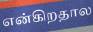
என்கிறதால